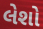
લેશો